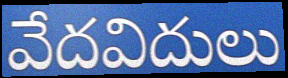
వేదవిదులు